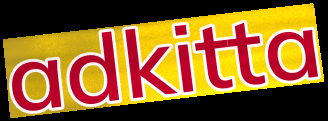
adkitta